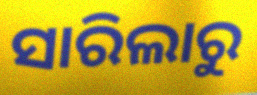
ସାରିଲାରୁ